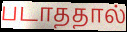
படாததால்